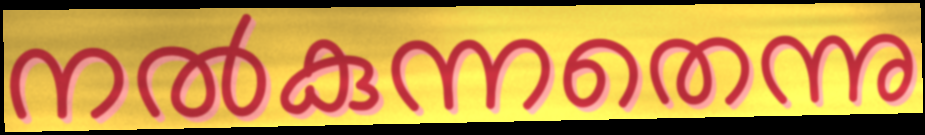
നൽകുന്നതെന്നു